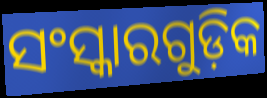
ସଂସ୍କାରଗୁଡ଼ିକ